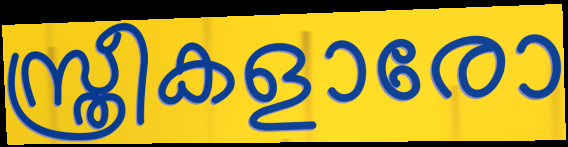
സ്ത്രീകളാരോ